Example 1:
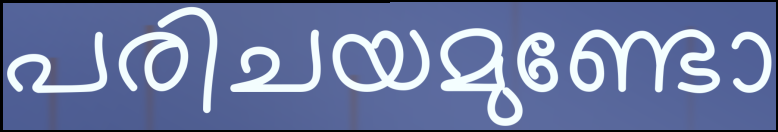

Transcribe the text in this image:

പരിചയമുണ്ടോ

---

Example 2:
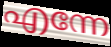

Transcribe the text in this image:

എന്നേ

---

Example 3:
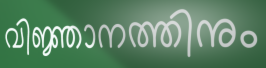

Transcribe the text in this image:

വിജ്ഞാനത്തിനും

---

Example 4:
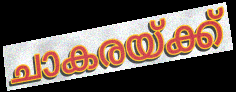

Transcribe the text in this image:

ചാകരയ്ക്ക്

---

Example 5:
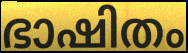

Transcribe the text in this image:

ഭാഷിതം